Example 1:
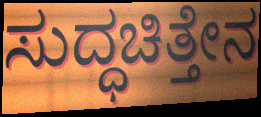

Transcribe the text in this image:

ಸುದ್ಧಚಿತ್ತೇನ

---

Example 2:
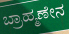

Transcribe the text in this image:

ಬ್ರಾಹ್ಮಣೇನ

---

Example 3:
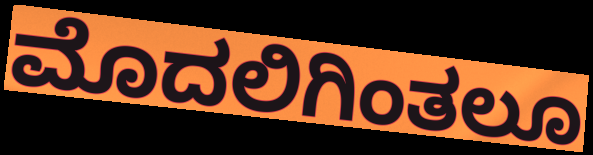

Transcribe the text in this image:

ಮೊದಲಿಗಿಂತಲೂ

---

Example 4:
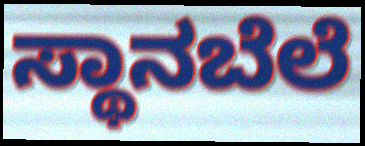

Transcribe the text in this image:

ಸ್ಥಾನಬೆಲೆ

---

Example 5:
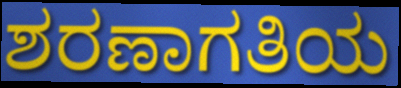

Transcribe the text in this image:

ಶರಣಾಗತಿಯ